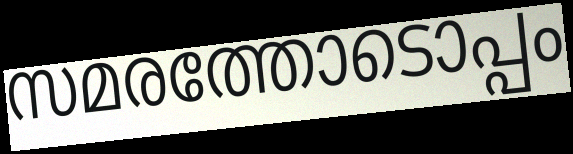
സമരത്തോടൊപ്പം